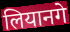
लियानगे